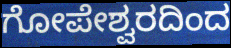
ಗೋಪೇಶ್ವರದಿಂದ